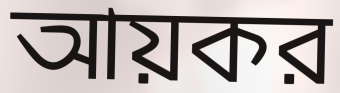
আয়কর